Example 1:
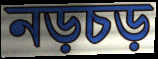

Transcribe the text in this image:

নড়চড়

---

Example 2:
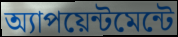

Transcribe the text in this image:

অ্যাপয়েন্টমেন্টে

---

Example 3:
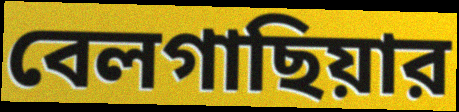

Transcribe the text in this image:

বেলগাছিয়ার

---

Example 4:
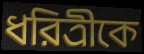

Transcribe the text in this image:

ধরিত্রীকে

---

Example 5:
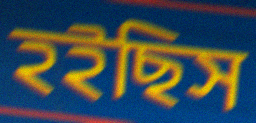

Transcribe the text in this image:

হইছিস